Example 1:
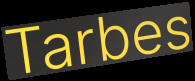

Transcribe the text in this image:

Tarbes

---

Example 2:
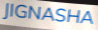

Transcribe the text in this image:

JIGNASHA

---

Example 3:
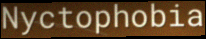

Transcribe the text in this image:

Nyctophobia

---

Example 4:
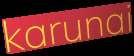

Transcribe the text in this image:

karunai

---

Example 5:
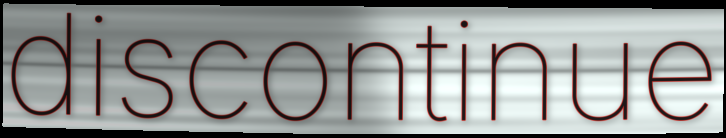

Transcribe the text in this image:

discontinue